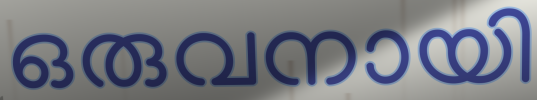
ഒരുവനായി